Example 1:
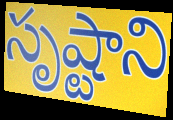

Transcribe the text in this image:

సృష్టాని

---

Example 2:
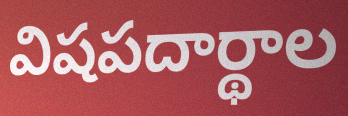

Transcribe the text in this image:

విషపదార్థాల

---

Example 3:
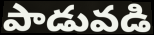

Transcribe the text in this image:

పాడువడి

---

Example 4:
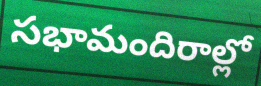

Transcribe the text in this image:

సభామందిరాల్లో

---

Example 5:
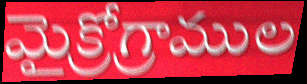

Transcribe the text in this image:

మైక్రోగ్రాముల